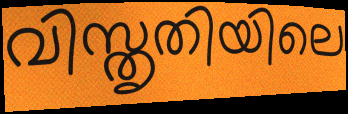
വിസ്തൃതിയിലെ